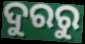
ଦୁରରୁ